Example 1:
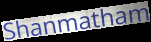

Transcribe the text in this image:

Shanmatham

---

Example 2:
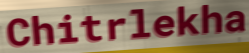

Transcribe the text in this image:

Chitrlekha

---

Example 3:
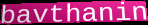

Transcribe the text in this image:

bavthanin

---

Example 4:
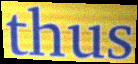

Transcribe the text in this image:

thus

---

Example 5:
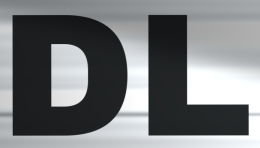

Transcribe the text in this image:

DL